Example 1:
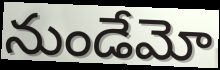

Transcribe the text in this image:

నుండేమో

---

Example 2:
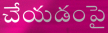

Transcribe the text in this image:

చేయడంపై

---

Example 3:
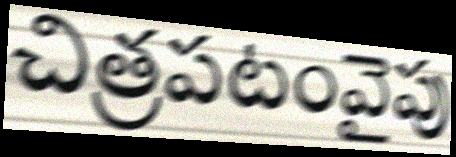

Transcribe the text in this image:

చిత్రపటంవైపు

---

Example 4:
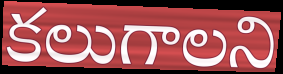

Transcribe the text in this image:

కలుగాలని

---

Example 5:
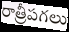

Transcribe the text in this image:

రాత్రీపగలు